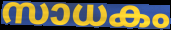
സാധകം